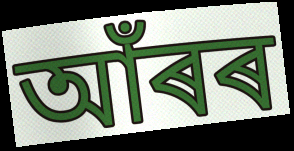
আঁৰৰ